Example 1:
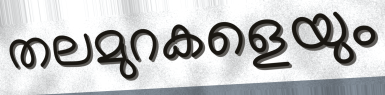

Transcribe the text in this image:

തലമുറകളെയും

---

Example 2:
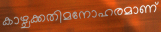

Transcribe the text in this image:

കാഴ്ചക്കതിമനോഹരമാണ്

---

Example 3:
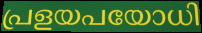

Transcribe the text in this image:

പ്രളയപയോധി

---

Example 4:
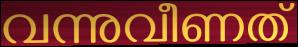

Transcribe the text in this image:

വന്നുവീണത്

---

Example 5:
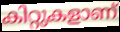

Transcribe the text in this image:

കിറ്റുകളാണ്